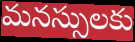
మనస్సులకు